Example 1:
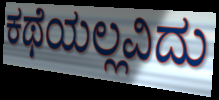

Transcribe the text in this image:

ಕಥೆಯಲ್ಲವಿದು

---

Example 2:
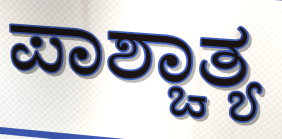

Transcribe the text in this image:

ಪಾಶ್ಚಾತ್ಯ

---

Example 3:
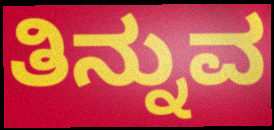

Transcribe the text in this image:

ತಿನ್ನುವ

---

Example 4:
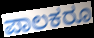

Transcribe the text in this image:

ಪಾಲಕರೂ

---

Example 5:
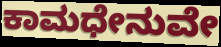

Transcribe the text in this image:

ಕಾಮಧೇನುವೇ